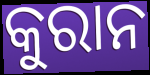
କୁରାନ